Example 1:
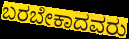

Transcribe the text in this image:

ಬರಬೇಕಾದವರು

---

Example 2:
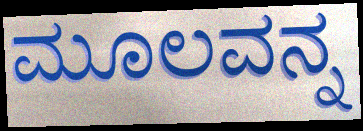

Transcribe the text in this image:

ಮೂಲವನ್ನ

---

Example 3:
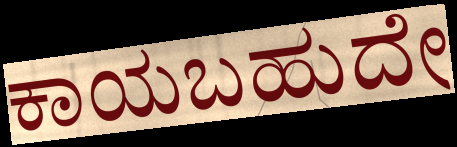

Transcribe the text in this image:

ಕಾಯಬಹುದೇ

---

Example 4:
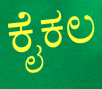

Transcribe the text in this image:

ಕೈಕಲ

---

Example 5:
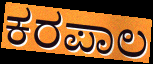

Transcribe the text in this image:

ಕರಪಾಲ